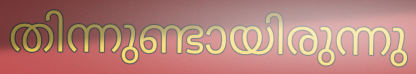
തിന്നുണ്ടായിരുന്നു